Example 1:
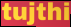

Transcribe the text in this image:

tujthi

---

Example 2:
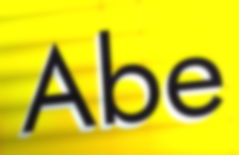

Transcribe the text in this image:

Abe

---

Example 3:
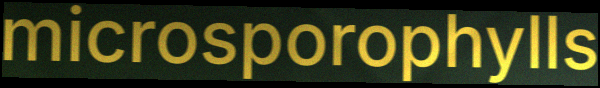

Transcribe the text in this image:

microsporophylls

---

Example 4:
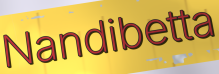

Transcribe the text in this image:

Nandibetta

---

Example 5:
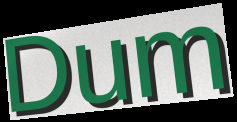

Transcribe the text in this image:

Dum